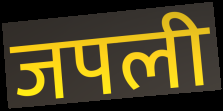
जपली